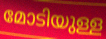
മോടിയുള്ള